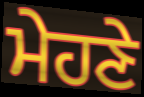
ਮੇਹਣੇ